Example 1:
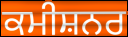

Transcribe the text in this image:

ਕਮੀਸ਼ਨਰ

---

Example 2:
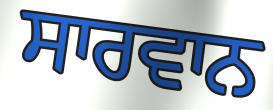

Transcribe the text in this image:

ਸਾਰਵਾਨ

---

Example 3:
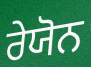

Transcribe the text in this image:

ਰੇਯੋਨ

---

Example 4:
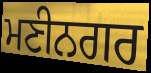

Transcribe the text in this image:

ਮਣੀਨਗਰ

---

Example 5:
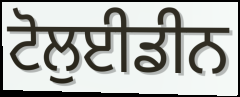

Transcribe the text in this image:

ਟੋਲੁਈਡੀਨ